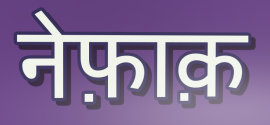
नेफ़ाक़